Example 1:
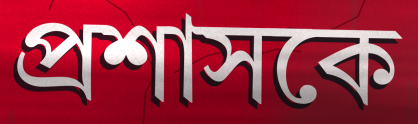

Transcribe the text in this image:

প্ৰশাসকে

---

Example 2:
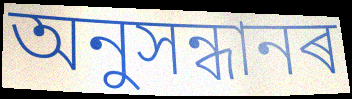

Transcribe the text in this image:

অনুসন্ধানৰ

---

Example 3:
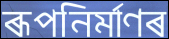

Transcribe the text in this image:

ৰূপনিৰ্মাণৰ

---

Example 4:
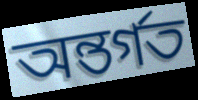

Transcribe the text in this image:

অন্তৰ্গত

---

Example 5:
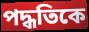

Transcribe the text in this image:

পদ্ধতিকে